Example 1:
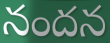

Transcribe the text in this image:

నందన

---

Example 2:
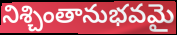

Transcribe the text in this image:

నిశ్చింతానుభవమై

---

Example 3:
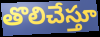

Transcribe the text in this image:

తొలిచేస్తూ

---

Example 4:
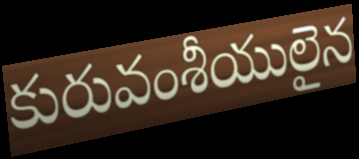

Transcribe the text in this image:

కురువంశీయులైన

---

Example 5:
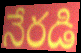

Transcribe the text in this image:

నేరడి